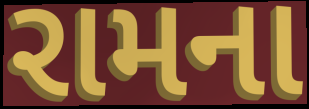
રામના